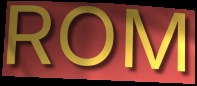
ROM